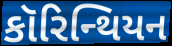
કૉરિન્થિયન